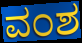
ವಂಶ